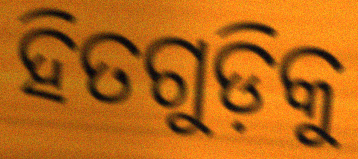
ହିତଗୁଡ଼ିକୁ